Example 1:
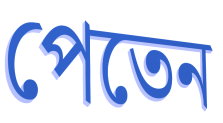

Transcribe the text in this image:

পেতেন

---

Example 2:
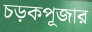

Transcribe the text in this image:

চড়কপূজার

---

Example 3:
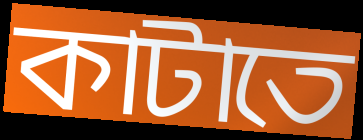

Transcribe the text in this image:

কাটাতে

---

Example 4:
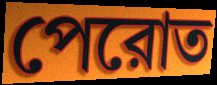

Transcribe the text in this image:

পেরোত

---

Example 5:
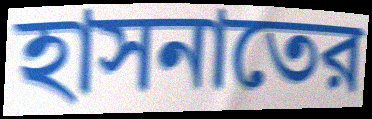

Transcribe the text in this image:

হাসনাতের